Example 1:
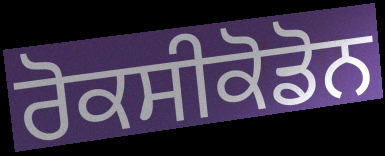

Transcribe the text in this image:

ਰੋਕਸੀਕੋਡੋਨ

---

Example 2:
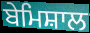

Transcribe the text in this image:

ਬੇਮਿਸ਼ਾਲ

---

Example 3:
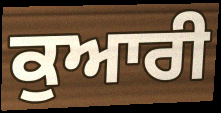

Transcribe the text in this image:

ਕੁਆਰੀ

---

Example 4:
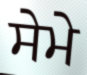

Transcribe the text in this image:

ਸੇਮੇ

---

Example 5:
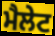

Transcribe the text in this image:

ਮੈਲੇਟ